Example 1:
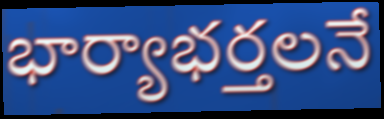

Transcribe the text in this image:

భార్యాభర్తలనే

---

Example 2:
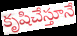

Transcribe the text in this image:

కృషిచేస్తూనే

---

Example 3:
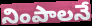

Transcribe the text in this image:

నింపాలనే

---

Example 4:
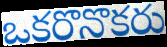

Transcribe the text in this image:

ఒకరొనొకరు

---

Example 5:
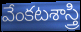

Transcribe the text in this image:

వేంకటశాస్త్రి